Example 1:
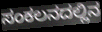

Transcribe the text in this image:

ಸಂಕಲನದಲ್ಲಿನ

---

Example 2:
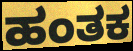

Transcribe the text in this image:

ಹಂತಕ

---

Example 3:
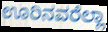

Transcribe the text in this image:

ಊರಿನವರೆಲ್ಲಾ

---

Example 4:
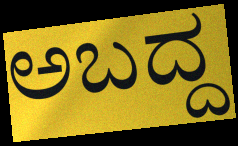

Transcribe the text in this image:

ಅಬದ್ದ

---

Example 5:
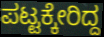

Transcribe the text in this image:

ಪಟ್ಟಕ್ಕೇರಿದ್ದ